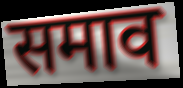
समाव